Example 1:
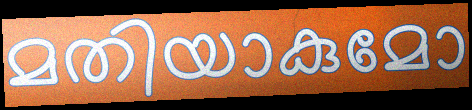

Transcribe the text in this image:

മതിയാകുമോ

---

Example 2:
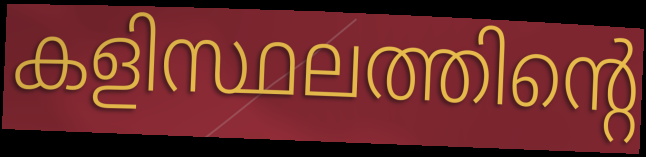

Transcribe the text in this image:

കളിസ്ഥലത്തിന്റെ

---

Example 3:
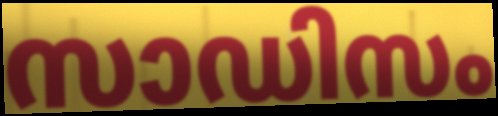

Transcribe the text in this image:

സാഡിസം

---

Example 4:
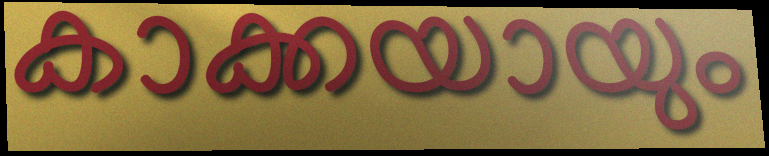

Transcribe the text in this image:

കാക്കയായും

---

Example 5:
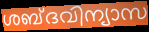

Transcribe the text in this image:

ശബ്ദവിന്യാസ